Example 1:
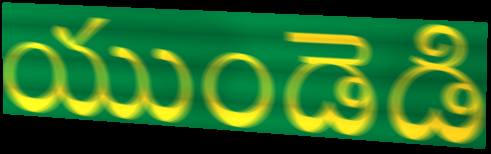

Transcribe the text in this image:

యుండెడి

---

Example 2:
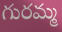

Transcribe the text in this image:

గురమ్మ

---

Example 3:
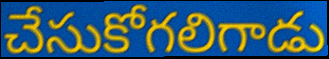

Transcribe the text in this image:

చేసుకోగలిగాడు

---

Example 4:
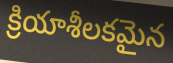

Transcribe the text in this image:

క్రియాశీలకమైన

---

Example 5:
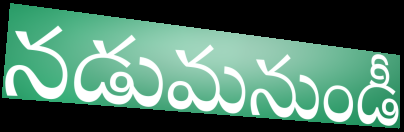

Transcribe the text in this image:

నడుమనుండీ